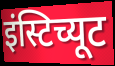
इंस्टिच्यूट